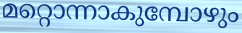
മറ്റൊന്നാകുമ്പോഴും